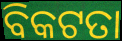
ବିକଟତା